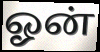
ஓன்